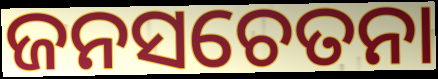
ଜନସଚେତନା